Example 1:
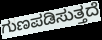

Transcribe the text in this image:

ಗುಣಪಡಿಸುತ್ತದೆ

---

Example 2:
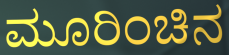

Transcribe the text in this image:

ಮೂರಿಂಚಿನ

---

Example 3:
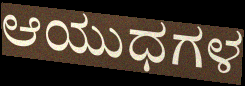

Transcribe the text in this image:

ಆಯುಧಗಳ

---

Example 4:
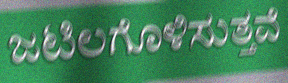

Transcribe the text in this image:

ಜಟಿಲಗೊಳಿಸುತ್ತವೆ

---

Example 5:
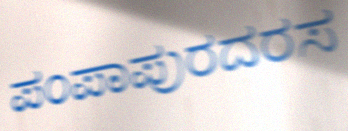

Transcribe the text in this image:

ಪಂಪಾಪುರದರಸ